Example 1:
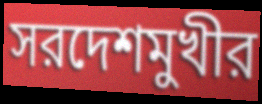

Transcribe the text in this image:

সরদেশমুখীর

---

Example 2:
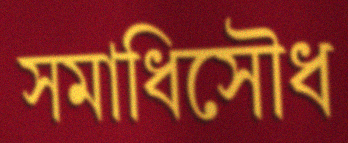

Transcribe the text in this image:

সমাধিসৌধ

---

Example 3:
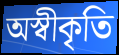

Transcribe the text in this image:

অস্বীকৃতি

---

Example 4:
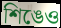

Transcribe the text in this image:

শিঙেও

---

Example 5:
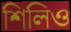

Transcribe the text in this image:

শিলিও